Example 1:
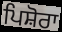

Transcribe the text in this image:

ਪਿਸ਼ੋਰਾ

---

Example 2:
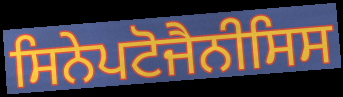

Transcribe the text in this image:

ਸਿਨੇਪਟੋਜੈਨੀਸਿਸ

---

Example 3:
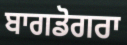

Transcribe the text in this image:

ਬਾਗਡੋਗਰਾ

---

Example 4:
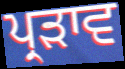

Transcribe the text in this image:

ਪ੍ਰੜਾਵ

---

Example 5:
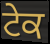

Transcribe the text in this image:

ਟੇਕ